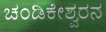
ಚಂಡಿಕೇಶ್ವರನ